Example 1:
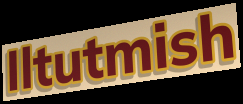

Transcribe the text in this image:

Iltutmish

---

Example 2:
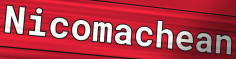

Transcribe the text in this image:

Nicomachean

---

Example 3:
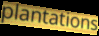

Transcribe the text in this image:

plantations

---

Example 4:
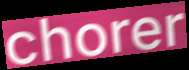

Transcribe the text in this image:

chorer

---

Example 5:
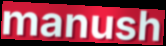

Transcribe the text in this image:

manush